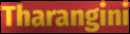
Tharangini